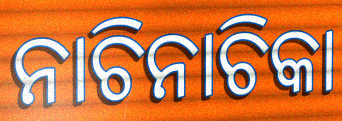
ନାଚିନାଚିକା